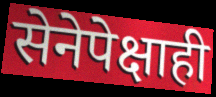
सेनेपेक्षाही